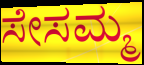
ಸೇಸಮ್ಮ